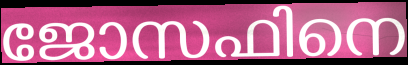
ജോസഫിനെ